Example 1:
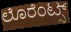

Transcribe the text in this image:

ಲೊರೆಂಟ್ಸ್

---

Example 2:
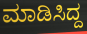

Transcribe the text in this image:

ಮಾಡಿಸಿದ್ದ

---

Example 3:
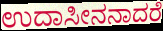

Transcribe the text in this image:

ಉದಾಸೀನನಾದರೆ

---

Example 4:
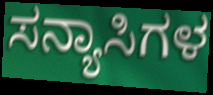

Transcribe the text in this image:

ಸನ್ಯಾಸಿಗಳ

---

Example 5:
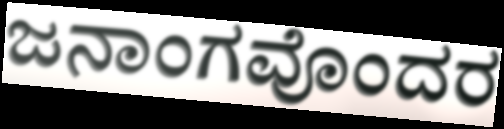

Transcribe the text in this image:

ಜನಾಂಗವೊಂದರ